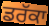
ਡਰੱਕਾ